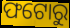
ଫଟୋରୁ